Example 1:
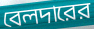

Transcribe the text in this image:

বেলদারের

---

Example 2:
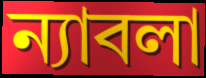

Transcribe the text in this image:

ন্যাবলা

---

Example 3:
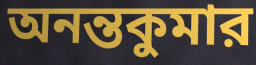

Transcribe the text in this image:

অনন্তকুমার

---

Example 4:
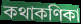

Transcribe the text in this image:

কথাকণিকা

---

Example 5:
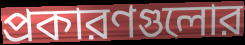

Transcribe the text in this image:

প্রকারণগুলোর